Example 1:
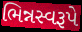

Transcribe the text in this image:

ભિન્નસ્વરૂપે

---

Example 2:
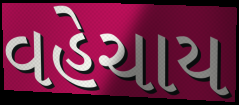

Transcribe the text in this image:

વહેચાય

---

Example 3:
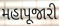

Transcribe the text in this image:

મહાપૂજારી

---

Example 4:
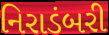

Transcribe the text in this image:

નિરાડંબરી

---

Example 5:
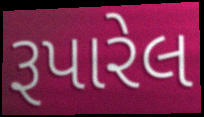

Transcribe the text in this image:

રૂપારેલ